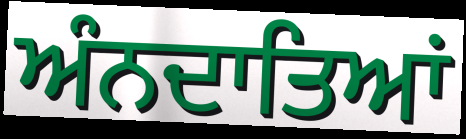
ਅੰਨਦਾਤਿਆਂ